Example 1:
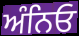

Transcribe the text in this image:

ਅੰਨਿਓ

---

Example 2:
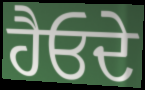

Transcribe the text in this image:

ਹੈਓਦੇ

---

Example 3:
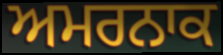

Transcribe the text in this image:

ਅਮਰਨਾਕ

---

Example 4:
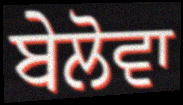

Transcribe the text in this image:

ਬੇਲੋਵਾ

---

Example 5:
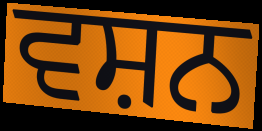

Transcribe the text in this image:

ਵਸ਼ਨ